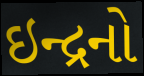
ઇન્દ્રનો